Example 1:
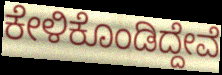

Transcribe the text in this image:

ಕೇಳಿಕೊಂಡಿದ್ದೇವೆ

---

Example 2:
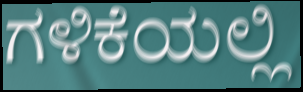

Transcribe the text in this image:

ಗಳಿಕೆಯಲ್ಲಿ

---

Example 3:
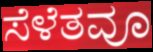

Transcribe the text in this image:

ಸೆಳೆತವೂ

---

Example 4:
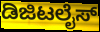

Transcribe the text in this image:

ಡಿಜಿಟಲೈಸ್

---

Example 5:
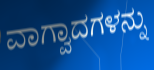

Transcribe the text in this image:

ವಾಗ್ವಾದಗಳನ್ನು